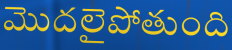
మొదలైపోతుంది